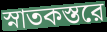
স্নাতকস্তরে